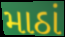
માઠાં